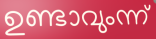
ഉണ്ടാവുംന്ന്